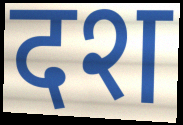
दश